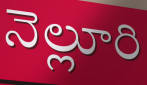
నెల్లూరి